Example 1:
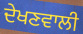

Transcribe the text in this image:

ਦੇਖਣਵਾਲੀ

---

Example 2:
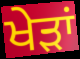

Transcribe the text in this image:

ਖੇੜਾਂ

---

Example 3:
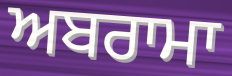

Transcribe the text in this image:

ਅਬਰਾਮਾ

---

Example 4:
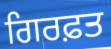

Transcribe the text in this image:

ਗਿਰਫ਼ਤ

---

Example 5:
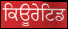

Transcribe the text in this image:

ਕਿਊਰੇਟਿਡ